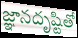
జ్ఞానదృష్టితో